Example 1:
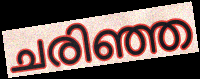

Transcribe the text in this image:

ചരിഞ്ഞ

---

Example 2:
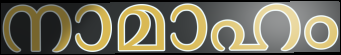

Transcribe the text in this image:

നാമാഹം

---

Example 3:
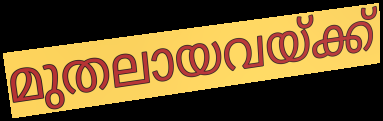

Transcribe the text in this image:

മുതലായവയ്ക്ക്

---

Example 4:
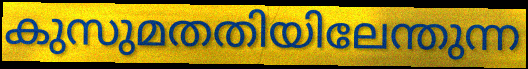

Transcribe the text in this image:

കുസുമതതിയിലേന്തുന്ന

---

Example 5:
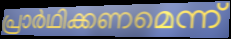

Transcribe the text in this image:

പ്രാർഥിക്കണമെന്ന്